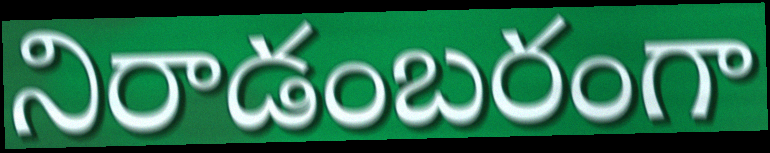
నిరాడంబరంగా